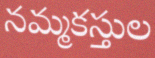
నమ్మకస్తుల